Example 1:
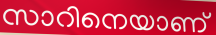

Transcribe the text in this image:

സാറിനെയാണ്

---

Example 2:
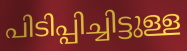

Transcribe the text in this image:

പിടിപ്പിച്ചിട്ടുള്ള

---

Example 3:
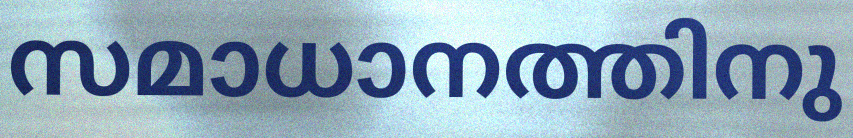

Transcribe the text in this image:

സമാധാനത്തിനു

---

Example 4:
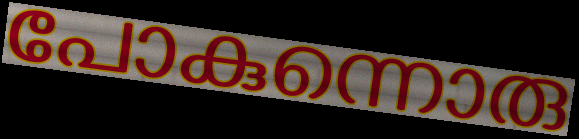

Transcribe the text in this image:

പോകുന്നൊരു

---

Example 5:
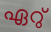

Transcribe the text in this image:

ഏറു്